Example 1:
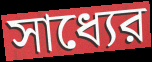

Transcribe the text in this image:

সাধ্যের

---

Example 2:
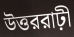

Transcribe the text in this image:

উত্তররাঢ়ী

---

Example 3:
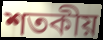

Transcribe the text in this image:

শতকীয়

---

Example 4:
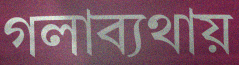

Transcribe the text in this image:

গলাব্যথায়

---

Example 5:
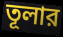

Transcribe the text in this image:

তূলার